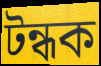
টন্ধক